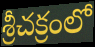
శ్రీచక్రంలో